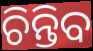
ଚିନ୍ତିବ